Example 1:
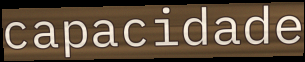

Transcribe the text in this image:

capacidade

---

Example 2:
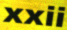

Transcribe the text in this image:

xxii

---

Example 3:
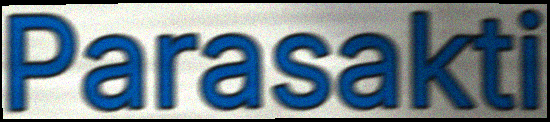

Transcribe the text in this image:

Parasakti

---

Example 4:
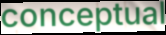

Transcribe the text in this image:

conceptual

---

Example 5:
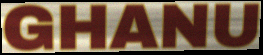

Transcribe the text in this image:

GHANU